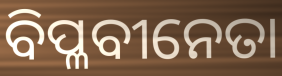
ବିପ୍ଳବୀନେତା